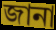
জানা